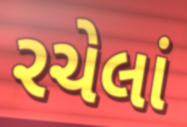
રચેલાં